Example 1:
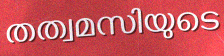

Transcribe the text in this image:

തത്വമസിയുടെ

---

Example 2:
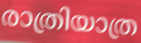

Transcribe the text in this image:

രാത്രിയാത്ര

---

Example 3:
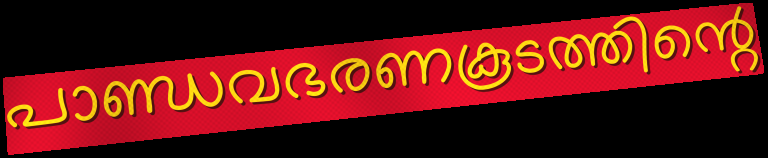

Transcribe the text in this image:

പാണ്ഡവഭരണകൂടത്തിന്റെ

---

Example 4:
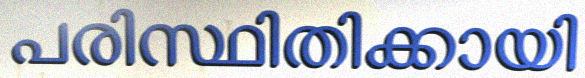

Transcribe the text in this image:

പരിസ്ഥിതിക്കായി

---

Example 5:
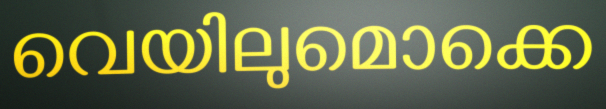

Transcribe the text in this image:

വെയിലുമൊക്കെ